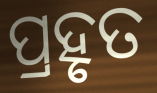
ପ୍ରହୃତ